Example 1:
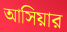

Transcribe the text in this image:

আসিয়ার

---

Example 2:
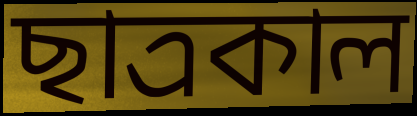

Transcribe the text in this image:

ছাত্রকাল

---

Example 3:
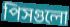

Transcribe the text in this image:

পিসগুলো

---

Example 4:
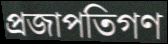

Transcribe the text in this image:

প্রজাপতিগণ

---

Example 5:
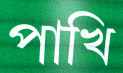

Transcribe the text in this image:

পাখি